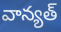
వాన్యత్